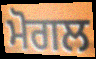
ਮੋਗਲ